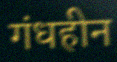
गंधहीन